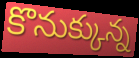
కొనుక్కున్న